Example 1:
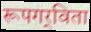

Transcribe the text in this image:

रूपगर्विता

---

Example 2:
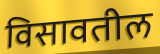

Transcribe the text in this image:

विसावतील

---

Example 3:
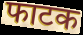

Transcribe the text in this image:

फाटक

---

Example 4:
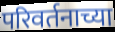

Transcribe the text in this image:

परिवर्तनाच्या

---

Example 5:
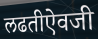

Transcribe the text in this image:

लढतीऐवजी